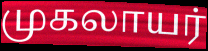
முகலாயர்